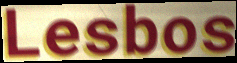
Lesbos